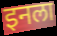
इनला